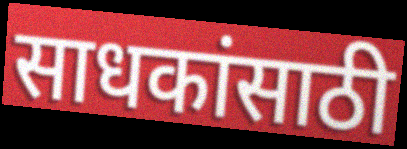
साधकांसाठी